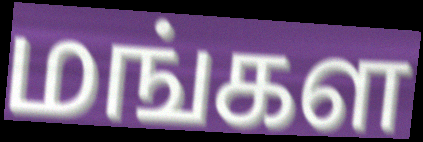
மங்கள